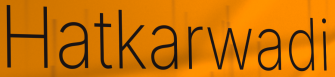
Hatkarwadi